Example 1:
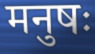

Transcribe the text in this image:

मनुषः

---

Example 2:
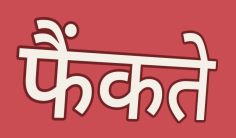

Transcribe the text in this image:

फैंकते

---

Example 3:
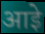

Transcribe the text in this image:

आइे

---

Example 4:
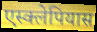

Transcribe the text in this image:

एस्क्लेपियास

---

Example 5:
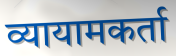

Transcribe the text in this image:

व्यायामकर्ता